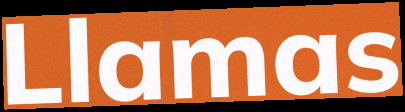
Llamas